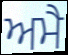
ਅਮੈ